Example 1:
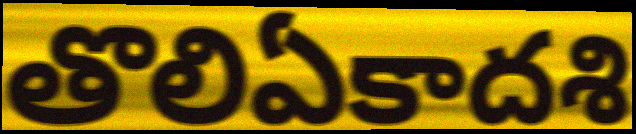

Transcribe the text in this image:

తొలిఏకాదశి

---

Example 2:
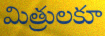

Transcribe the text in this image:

మిత్రులకూ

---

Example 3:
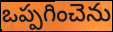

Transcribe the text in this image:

ఒప్పగించెను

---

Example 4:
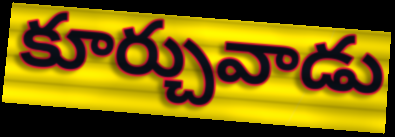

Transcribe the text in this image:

కూర్చువాడు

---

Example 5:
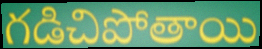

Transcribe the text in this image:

గడిచిపోతాయి